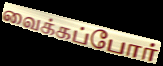
வைக்கப்போர்